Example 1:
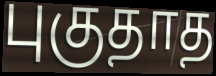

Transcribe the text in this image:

புகுதாத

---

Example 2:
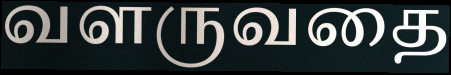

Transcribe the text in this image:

வளருவதை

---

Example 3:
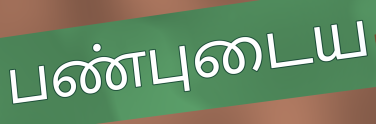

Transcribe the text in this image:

பண்புடைய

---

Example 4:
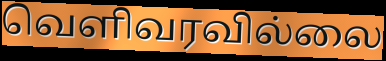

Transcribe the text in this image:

வெளிவரவில்லை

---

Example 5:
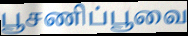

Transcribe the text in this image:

பூசணிப்பூவை